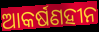
ଆକର୍ଷଣହୀନ